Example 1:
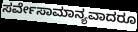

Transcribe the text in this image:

ಸರ್ವೇಸಾಮಾನ್ಯವಾದರೂ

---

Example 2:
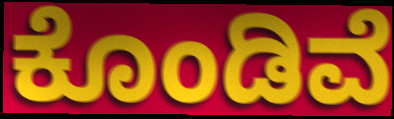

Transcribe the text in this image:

ಕೊಂಡಿವೆ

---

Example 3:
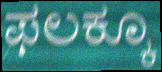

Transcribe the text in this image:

ಫಲಕ್ಕೂ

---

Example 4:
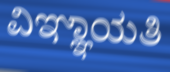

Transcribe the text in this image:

ವಿಞ್ಞಾಯತಿ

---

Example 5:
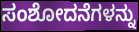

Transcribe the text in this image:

ಸಂಶೋದನೆಗಳನ್ನು